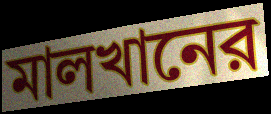
মালখানের